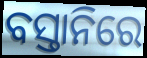
ବସ୍ତାନିରେ